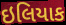
ઇલિયાક